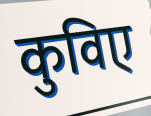
कुविए